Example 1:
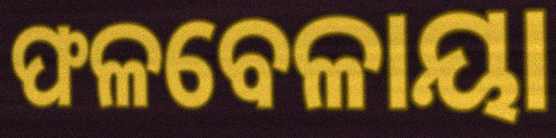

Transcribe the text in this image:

ଫଳବେଳାୟା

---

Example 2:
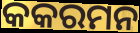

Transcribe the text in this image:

କକରମନ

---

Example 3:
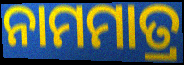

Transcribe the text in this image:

ନାମମାତ୍ର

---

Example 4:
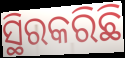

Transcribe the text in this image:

ସ୍ଥିରକରିଛି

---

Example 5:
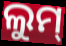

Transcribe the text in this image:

ଲୁମ୍